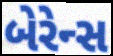
બેરેન્સ